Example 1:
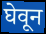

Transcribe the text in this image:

घेवून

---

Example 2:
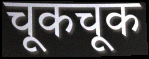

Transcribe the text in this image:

चूकचूक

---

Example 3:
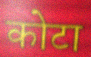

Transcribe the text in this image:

कोटा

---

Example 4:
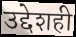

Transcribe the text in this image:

उद्देशही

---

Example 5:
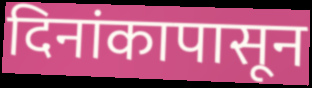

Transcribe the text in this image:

दिनांकापासून